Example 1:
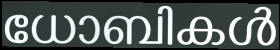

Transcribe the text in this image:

ധോബികൾ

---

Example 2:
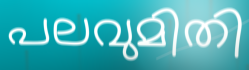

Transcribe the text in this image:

പലവുമിതി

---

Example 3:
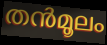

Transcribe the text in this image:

തൻമൂലം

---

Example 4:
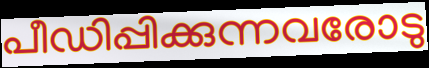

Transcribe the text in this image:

പീഡിപ്പിക്കുന്നവരോടു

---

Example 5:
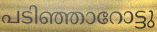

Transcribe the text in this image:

പടിഞ്ഞാറോട്ടു